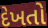
દેખતો